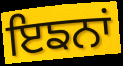
ਇਙਨਾਂ